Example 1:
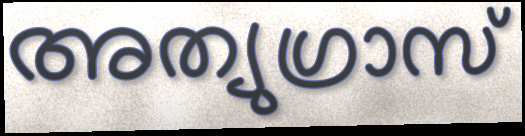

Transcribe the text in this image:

അത്യുഗ്രാസ്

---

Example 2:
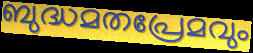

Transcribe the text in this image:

ബുദ്ധമതപ്രേമവും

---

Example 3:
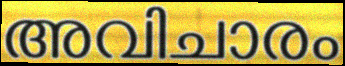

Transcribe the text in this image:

അവിചാരം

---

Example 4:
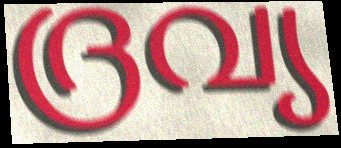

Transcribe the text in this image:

ദ്രവ്യ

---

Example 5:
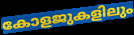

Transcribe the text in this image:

കോളജുകളിലും